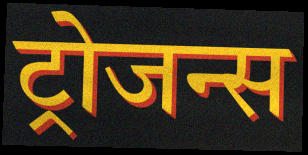
ट्रोजन्स